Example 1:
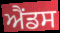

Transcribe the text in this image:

ਐਂਡਸ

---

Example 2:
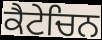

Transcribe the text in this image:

ਕੈਟੇਚਿਨ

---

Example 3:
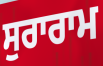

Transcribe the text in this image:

ਸੁਰਾਰਾਮ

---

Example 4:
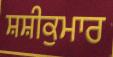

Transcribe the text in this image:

ਸ਼ਸ਼ੀਕੁਮਾਰ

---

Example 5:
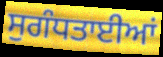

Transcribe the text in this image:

ਸੁਗੰਧਤਾਈਆਂ